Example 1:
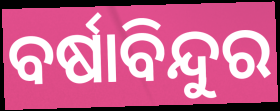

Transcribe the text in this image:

ବର୍ଷାବିନ୍ଦୁର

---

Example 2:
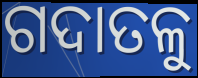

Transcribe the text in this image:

ଗଦାତଳୁ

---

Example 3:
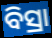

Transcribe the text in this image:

ବିସ୍ରା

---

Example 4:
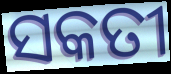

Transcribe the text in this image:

ସକତୀ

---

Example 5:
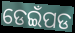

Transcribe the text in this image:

ଡେଇଁପଡ